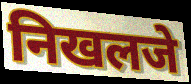
निखलजे